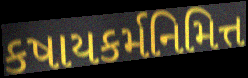
કષાયકર્મનિમિત્ત